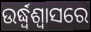
ଉର୍ଦ୍ଧ୍ଵଶ୍ୱାସରେ